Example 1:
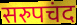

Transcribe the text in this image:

सरुपचंद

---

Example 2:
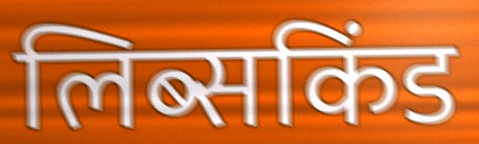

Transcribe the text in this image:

लिब्सकिंड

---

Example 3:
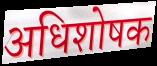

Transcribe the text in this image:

अधिशोषक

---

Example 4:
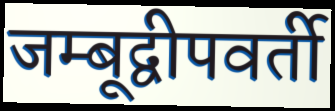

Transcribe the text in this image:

जम्बूद्वीपवर्ती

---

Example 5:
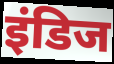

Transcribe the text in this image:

इंडिज